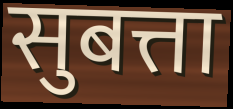
सुबत्ता